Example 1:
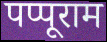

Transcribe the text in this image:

पप्पूराम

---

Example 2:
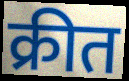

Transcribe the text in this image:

क्रीत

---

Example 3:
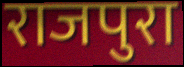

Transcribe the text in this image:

राजपुरा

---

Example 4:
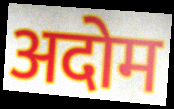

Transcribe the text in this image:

अदोम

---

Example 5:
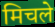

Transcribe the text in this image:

मिचले